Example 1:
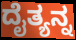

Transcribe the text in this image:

ದೈತ್ಯನ್ನ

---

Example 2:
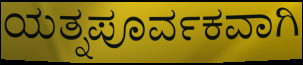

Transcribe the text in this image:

ಯತ್ನಪೂರ್ವಕವಾಗಿ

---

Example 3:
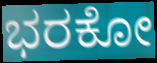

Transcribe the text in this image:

ಭರಕೋ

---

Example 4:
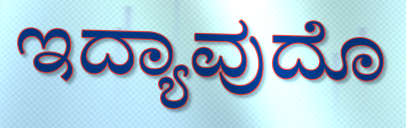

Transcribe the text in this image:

ಇದ್ಯಾವುದೊ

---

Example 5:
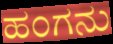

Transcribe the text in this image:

ಹಂಗನು